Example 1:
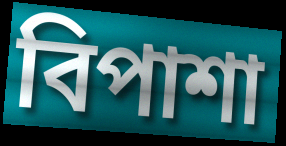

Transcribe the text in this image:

বিপাশা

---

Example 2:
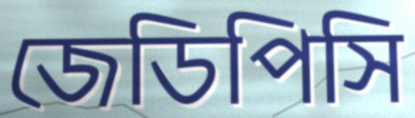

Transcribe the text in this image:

জেডিপিসি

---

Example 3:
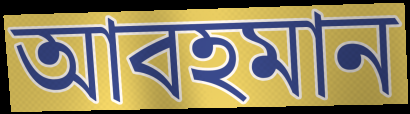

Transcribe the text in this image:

আবহমান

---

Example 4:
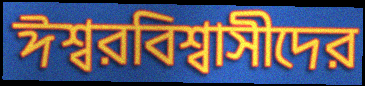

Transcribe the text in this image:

ঈশ্বরবিশ্বাসীদের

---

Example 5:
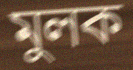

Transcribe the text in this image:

মুলক